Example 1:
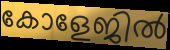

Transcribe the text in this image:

കോളേജിൽ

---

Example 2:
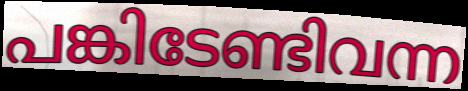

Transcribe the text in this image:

പങ്കിടേണ്ടിവന്ന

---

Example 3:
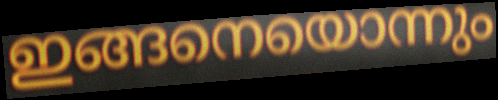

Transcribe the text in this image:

ഇങ്ങനെയൊന്നും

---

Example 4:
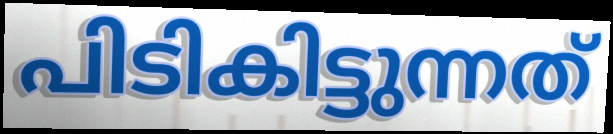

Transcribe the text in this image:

പിടികിട്ടുന്നത്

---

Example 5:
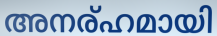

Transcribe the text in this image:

അനര്ഹമായി